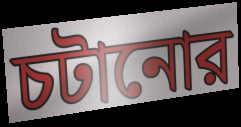
চটানোর